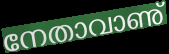
നേതാവാണു്